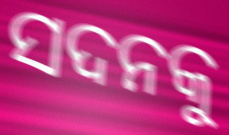
ସଦନକୁ